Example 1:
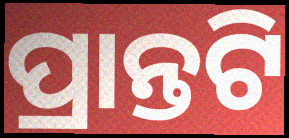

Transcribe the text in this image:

ପ୍ରାନ୍ତଟି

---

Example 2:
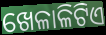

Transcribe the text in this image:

ଖେଳାଳିଟିଏ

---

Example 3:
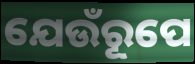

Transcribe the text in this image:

ଯେଉଁରୂପେ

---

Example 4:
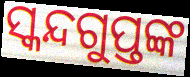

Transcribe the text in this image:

ସ୍କନ୍ଦଗୁପ୍ତଙ୍କ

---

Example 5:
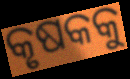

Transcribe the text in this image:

କୃଷକକୁ